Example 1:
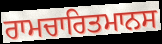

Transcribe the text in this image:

ਰਾਮਚਾਰਿਤਮਾਨਸ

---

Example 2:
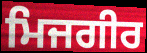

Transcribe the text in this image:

ਮਿਜਗੀਰ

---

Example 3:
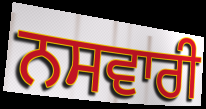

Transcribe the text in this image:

ਨਸਵਾਰੀ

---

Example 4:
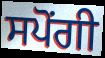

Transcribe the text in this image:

ਸਪੋਂਗੀ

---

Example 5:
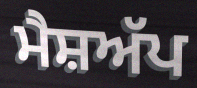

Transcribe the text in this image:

ਮੈਸ਼ਅੱਪ